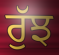
ਰੁੱਝ